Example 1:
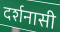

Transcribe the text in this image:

दर्शनासी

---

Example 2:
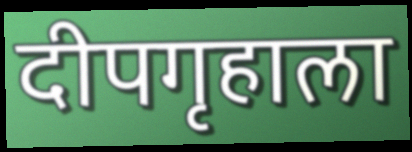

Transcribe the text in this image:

दीपगृहाला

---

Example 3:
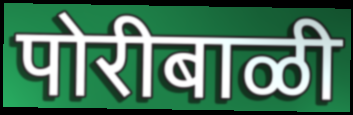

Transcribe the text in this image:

पोरीबाळी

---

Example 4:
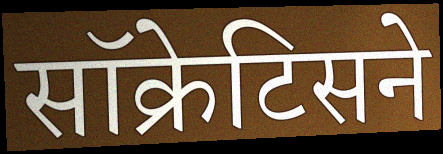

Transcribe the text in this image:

सॉक्रेटिसने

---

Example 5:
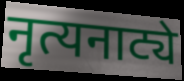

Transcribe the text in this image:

नृत्यनाट्ये